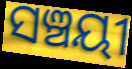
ସଞ୍ଚୟୀ